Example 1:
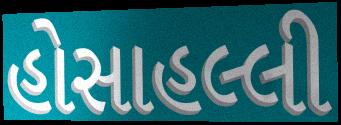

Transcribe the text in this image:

હોસાહલ્લી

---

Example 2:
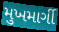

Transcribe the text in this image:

મુખમાર્ગી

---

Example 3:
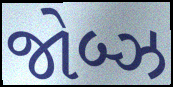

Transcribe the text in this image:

જોબ્ઝ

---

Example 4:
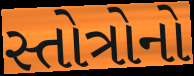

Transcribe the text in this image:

સ્તોત્રોનો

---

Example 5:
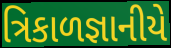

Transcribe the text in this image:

ત્રિકાળજ્ઞાનીયે